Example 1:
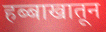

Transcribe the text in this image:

हब्बाखातून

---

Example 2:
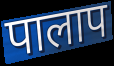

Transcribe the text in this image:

पालाप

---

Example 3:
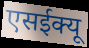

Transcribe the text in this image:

एसईक्यू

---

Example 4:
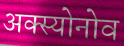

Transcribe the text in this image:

अक्स्योनोव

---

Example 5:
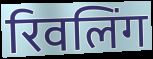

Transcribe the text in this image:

रिवलिंग